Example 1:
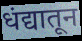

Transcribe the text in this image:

धंद्यातून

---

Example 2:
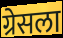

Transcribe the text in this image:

ग्रेसला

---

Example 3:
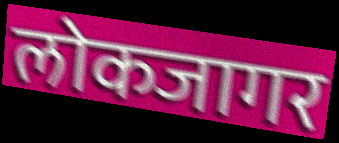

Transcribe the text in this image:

लोकजागर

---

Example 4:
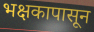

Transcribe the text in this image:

भक्षकापासून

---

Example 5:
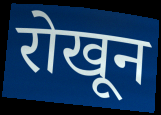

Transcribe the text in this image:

रोखून